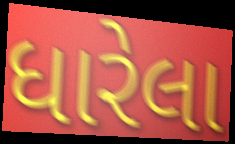
ધારેલા